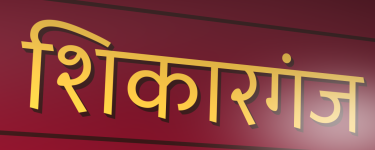
शिकारगंज